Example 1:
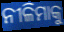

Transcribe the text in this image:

ନୀଳିମାକୁ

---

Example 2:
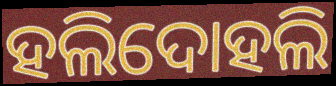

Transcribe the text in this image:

ହଲିଦୋହଲି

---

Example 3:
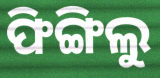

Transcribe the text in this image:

ଫିଙ୍ଗିଲୁ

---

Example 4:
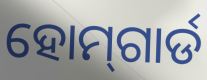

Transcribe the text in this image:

ହୋମ୍‌ଗାର୍ଡ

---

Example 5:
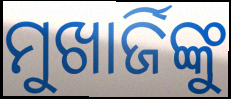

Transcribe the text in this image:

ମୁଖାର୍ଜିଙ୍କୁ